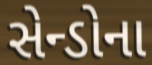
સેન્ડોના